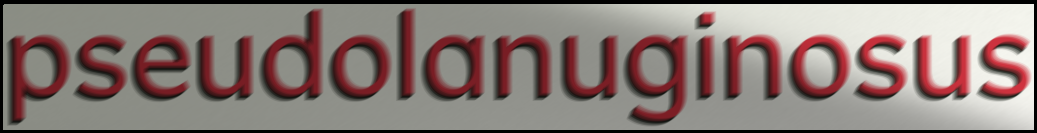
pseudolanuginosus